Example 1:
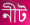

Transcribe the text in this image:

নীট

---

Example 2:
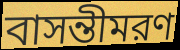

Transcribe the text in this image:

বাসন্তীমরণ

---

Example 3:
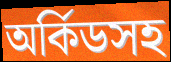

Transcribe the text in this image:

অর্কিডসহ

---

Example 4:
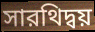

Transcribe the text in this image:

সারথিদ্বয়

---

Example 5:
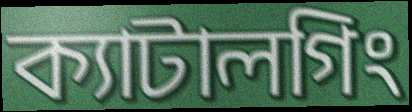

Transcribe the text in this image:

ক্যাটালগিং